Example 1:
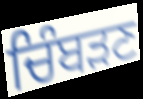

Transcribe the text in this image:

ਚਿੰਬੜਣ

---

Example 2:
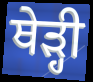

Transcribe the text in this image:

ਥੇੜ੍ਹੀ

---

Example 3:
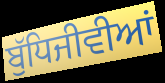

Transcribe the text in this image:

ਬੁੱਧਿਜੀਵੀਆਂ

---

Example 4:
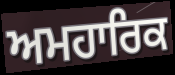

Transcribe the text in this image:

ਅਮਹਾਰਿਕ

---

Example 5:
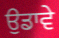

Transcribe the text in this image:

ਉਡਾਵੇ